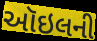
ઑઇલની